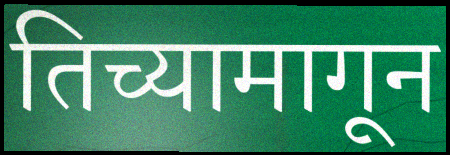
तिच्यामागून